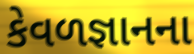
કેવળજ્ઞાનના